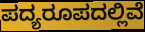
ಪದ್ಯರೂಪದಲ್ಲಿವೆ